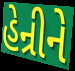
હેન્રીને